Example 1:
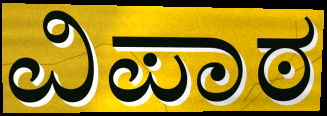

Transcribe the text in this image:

ವಿಪಾಠ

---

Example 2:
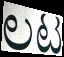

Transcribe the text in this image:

ಲಟ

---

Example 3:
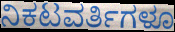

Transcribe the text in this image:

ನಿಕಟವರ್ತಿಗಳೂ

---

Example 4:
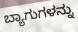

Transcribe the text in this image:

ಬ್ಯಾಗುಗಳನ್ನು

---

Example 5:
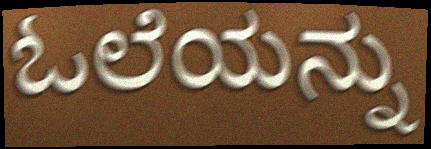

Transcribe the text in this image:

ಓಲೆಯನ್ನು